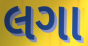
લગા